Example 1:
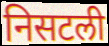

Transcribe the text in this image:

निसटली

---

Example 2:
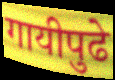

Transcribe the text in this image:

गायीपुढे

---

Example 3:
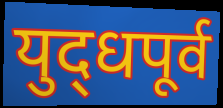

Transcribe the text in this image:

युद्धपूर्व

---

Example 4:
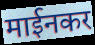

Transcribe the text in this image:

माईनकर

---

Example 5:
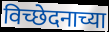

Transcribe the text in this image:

विच्छेदनाच्या